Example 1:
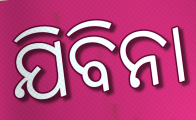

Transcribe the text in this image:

ଯିବିନା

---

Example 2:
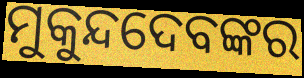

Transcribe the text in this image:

ମୁକୁନ୍ଦଦେବଙ୍କର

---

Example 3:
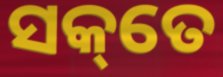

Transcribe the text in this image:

ସକ୍‌ତେ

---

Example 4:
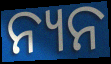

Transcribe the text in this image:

ନ୍ୟନ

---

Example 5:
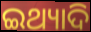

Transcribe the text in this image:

ଇଥ୍ୟାଦି